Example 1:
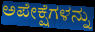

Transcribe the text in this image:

ಅಪೇಕ್ಷೆಗಳನ್ನು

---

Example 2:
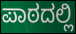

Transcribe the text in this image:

ಪಾಠದಲ್ಲಿ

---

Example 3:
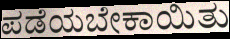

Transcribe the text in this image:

ಪಡೆಯಬೇಕಾಯಿತು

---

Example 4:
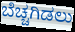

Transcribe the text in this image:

ಬೆಚ್ಚಗಿಡಲು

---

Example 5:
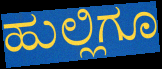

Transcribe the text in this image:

ಹುಲ್ಲಿಗೂ